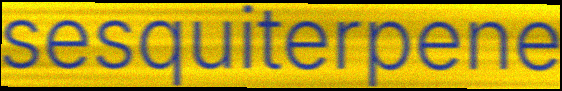
sesquiterpene